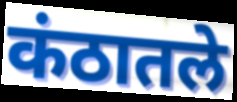
कंठातले